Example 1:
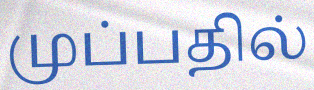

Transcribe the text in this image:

முப்பதில்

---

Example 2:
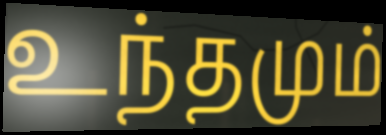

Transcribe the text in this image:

உந்தமும்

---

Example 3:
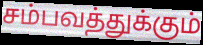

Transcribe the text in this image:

சம்பவத்துக்கும்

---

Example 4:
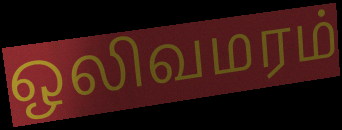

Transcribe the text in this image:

ஒலிவமரம்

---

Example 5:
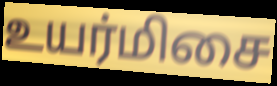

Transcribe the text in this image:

உயர்மிசை